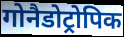
गोनैडोट्रोपिक